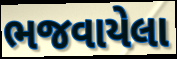
ભજવાયેલા